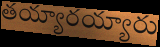
తయ్యారయ్యారు